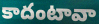
కాదంటావా